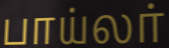
பாய்லர்